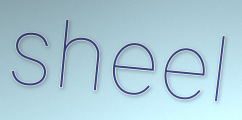
sheel